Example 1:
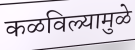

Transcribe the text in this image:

कळविल्यामुळे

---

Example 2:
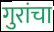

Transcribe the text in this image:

गुरांचा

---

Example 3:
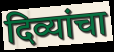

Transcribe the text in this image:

दिव्यांचा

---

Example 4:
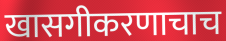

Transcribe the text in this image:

खासगीकरणाचाच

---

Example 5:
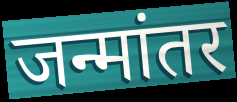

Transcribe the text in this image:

जन्मांतर